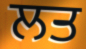
ਲਤ